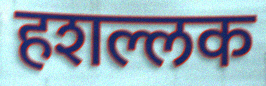
हशल्लक